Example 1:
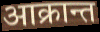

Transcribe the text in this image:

आक्रान्त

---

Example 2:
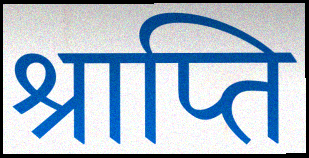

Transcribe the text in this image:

श्राप्ति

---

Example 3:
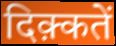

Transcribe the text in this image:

दिक़्कतें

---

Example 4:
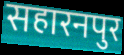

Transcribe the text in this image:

सहारनपुर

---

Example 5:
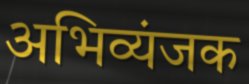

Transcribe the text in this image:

अभिव्यंजक